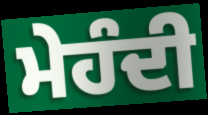
ਮੇਹੰਦੀ